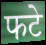
फटे